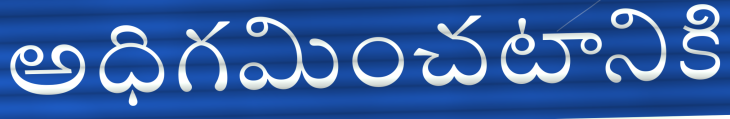
అధిగమించటానికి